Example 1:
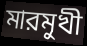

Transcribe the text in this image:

মারমুখী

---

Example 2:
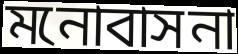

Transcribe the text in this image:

মনোবাসনা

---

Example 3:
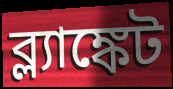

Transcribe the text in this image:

ব্ল্যাঙ্কেট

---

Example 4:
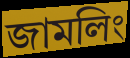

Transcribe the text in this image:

জামলিং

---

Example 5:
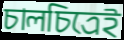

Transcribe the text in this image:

চালচিত্রেই